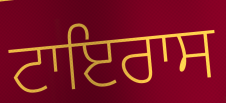
ਟਾਇਰਾਸ